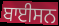
ਬਾਈਸਨ